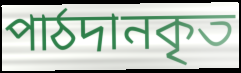
পাঠদানকৃত